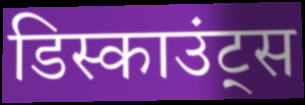
डिस्काउंट्स